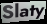
Slaty